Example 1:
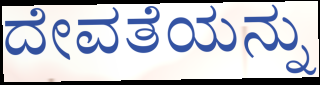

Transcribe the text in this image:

ದೇವತೆಯನ್ನು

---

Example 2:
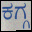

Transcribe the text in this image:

ಕಗ್ಗ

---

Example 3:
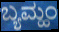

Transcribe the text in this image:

ಬ್ಯಮ್ಹಂ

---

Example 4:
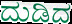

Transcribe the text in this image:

ದುಡಿದ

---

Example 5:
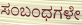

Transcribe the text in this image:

ಸಂಬಂಧಗಳೇ